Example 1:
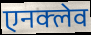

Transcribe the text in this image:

एनक्‍लेव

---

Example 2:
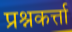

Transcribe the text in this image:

प्रश्नकर्त्ता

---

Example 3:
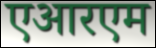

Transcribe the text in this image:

एआरएम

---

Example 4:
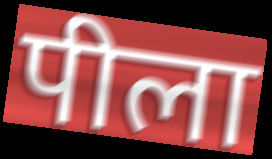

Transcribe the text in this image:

पीला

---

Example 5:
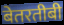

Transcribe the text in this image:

बेतरतीबी